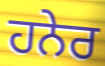
ਹਨੇਰ